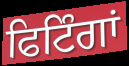
ਫਿਟਿੰਗਾਂ